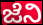
ಜೆನಿ